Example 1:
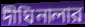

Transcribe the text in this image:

দীঘিনালার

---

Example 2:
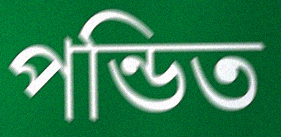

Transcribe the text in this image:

পন্ডিত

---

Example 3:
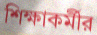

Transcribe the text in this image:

শিক্ষাকর্মীর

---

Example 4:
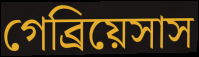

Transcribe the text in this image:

গেব্রিয়েসাস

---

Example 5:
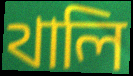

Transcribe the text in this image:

থালি